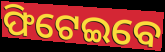
ଫିଟେଇବେ